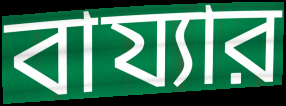
বায্যার